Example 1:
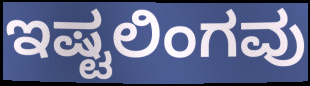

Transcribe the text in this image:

ಇಷ್ಟಲಿಂಗವು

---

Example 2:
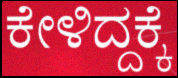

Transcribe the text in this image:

ಕೇಳಿದ್ದಕ್ಕೆ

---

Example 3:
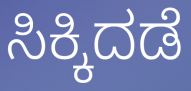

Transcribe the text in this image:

ಸಿಕ್ಕಿದಡೆ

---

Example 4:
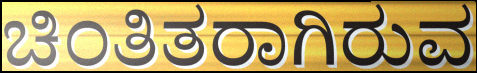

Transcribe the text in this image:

ಚಿಂತಿತರಾಗಿರುವ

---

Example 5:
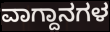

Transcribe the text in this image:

ವಾಗ್ದಾನಗಳ